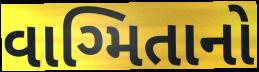
વાગ્મિતાનો